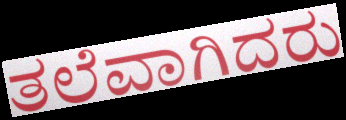
ತಲೆವಾಗಿದರು